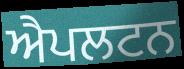
ਐਪਲਟਨ